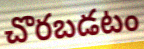
చొరబడటం